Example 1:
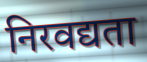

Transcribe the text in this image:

निरवद्यता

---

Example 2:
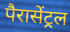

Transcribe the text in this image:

पैरासेंट्रल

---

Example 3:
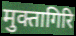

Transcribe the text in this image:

मुक्तागिरि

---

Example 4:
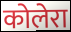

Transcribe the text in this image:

कोलेरा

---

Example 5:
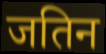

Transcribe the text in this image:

जतिन